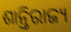
ଶାନ୍ତିରାଜ୍ୟ